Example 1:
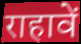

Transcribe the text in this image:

राहावें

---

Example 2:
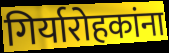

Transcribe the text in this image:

गिर्यारोहकांना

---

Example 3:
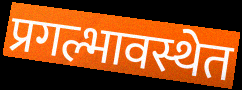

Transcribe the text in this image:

प्रगल्भावस्थेत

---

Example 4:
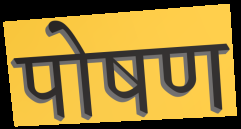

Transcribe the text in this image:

पोषण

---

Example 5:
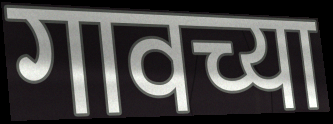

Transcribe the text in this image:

गावच्या